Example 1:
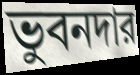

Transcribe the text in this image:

ভুবনদার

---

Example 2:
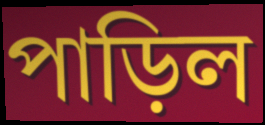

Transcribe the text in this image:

পাড়িল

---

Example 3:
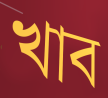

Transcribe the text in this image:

খাব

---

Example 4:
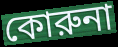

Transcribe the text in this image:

কোরুনা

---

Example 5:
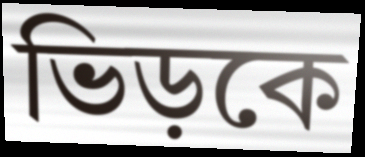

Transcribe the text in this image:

ভিড়কে